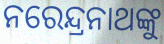
ନରେନ୍ଦ୍ରନାଥଙ୍କୁ